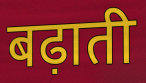
बढ़ाती